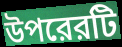
উপরেরটি